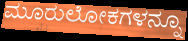
ಮೂರುಲೋಕಗಳನ್ನೂ